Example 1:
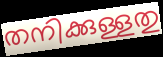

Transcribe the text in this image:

തനിക്കുള്ളതു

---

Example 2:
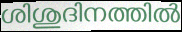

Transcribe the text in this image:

ശിശുദിനത്തിൽ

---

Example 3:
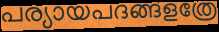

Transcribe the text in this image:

പര്യായപദങ്ങളത്രേ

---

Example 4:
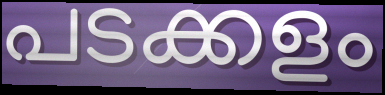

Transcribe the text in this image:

പടക്കളം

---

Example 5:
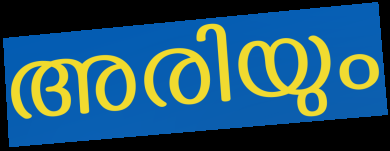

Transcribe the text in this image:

അരിയും